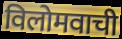
विलोमवाची